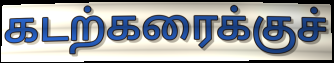
கடற்கரைக்குச்